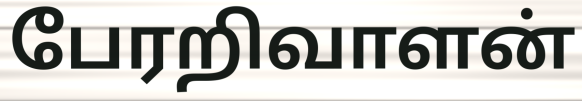
பேரறிவாளன்